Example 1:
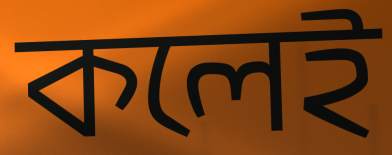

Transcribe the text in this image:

কলেই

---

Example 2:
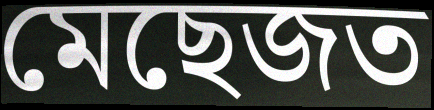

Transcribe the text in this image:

মেছেজত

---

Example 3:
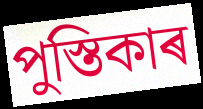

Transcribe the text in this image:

পুস্তিকাৰ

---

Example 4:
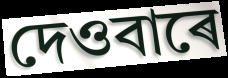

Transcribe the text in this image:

দেওবাৰে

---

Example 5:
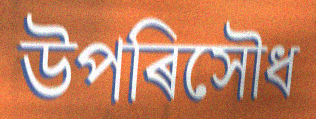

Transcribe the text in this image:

উপৰিসৌধ